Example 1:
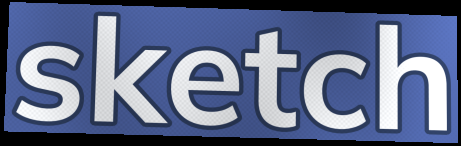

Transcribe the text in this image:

sketch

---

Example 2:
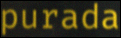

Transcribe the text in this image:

purada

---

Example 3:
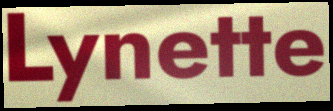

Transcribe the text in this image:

Lynette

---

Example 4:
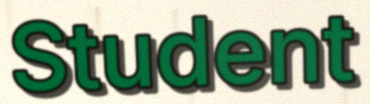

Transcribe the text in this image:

Student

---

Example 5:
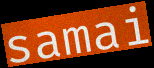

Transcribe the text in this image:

samai